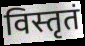
विस्तृतं